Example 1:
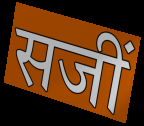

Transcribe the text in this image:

सजीं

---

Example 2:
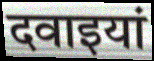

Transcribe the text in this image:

दवाइयां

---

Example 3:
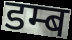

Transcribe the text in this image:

डम्ब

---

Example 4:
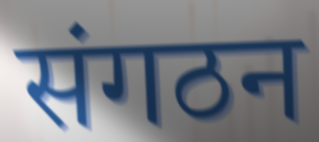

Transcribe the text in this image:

संगठन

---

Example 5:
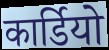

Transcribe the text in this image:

कार्डियो